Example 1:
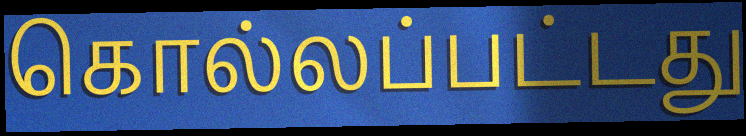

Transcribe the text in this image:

கொல்லப்பட்டது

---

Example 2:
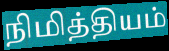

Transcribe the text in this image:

நிமித்தியம்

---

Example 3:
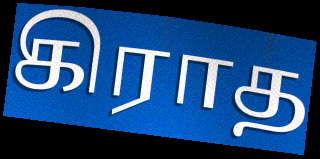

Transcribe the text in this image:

கிராத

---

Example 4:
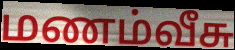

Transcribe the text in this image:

மணம்வீசு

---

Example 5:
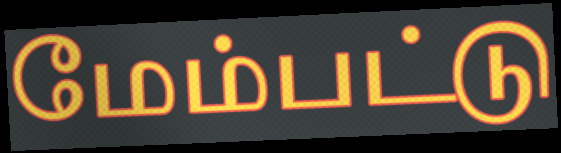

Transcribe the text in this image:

மேம்பட்டு